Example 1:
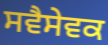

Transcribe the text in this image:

ਸਵੈਸੇਵਕ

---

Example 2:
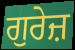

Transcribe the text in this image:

ਗੁਰੇਜ਼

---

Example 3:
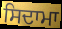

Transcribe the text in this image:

ਸਿਦਾਮਾ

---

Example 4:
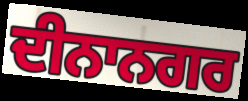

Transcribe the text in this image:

ਦੀਨਾਨਗਰ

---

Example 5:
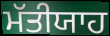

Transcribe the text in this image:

ਮੱਤੀਯਾਹ